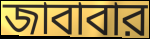
জাবাবার